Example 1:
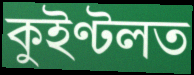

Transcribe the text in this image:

কুইণ্টলত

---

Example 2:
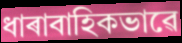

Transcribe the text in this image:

ধাৰাবাহিকভাৱে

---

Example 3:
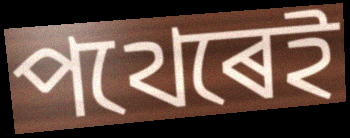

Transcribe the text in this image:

পথেৰেই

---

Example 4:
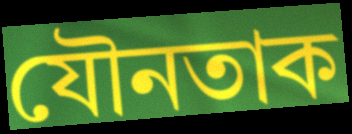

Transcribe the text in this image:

যৌনতাক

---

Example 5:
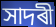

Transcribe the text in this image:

সাদৰী